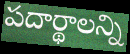
పదార్థాలన్ని